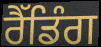
ਰੈੱਡਿੰਗ